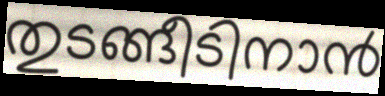
തുടങ്ങീടിനാൻ